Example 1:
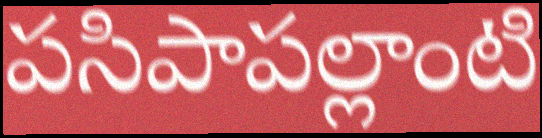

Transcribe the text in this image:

పసిపాపల్లాంటి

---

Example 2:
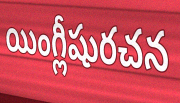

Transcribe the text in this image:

యింగ్లీషురచన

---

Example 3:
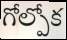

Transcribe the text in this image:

గోల్పోక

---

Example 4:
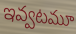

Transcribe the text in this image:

ఇవ్వటమూ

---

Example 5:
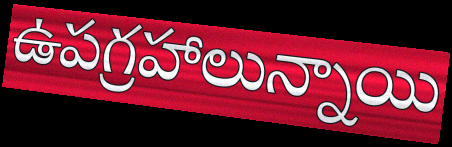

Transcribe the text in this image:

ఉపగ్రహాలున్నాయి